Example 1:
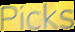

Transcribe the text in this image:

Picks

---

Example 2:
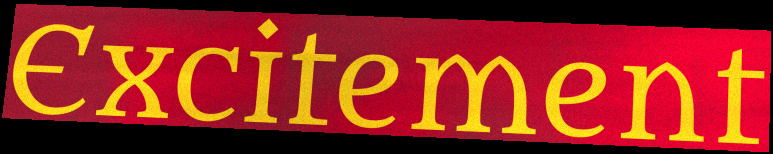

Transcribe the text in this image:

Excitement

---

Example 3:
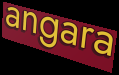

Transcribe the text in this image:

angara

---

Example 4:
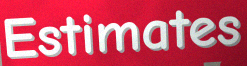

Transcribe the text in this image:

Estimates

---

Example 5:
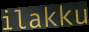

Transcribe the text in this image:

ilakku